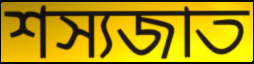
শস্যজাত